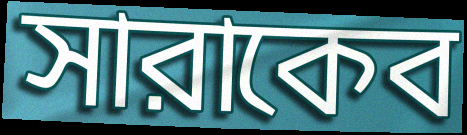
সারাকেব